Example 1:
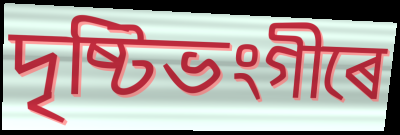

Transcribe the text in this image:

দৃষ্টিভংগীৰে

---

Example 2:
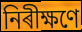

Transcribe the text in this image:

নিৰীক্ষণে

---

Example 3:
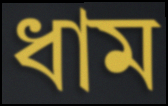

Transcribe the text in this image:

ধাম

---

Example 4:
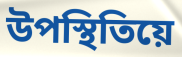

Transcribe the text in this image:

উপস্থিতিয়ে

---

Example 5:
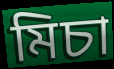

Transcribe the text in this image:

মিচা